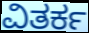
ವಿತರ್ಕ